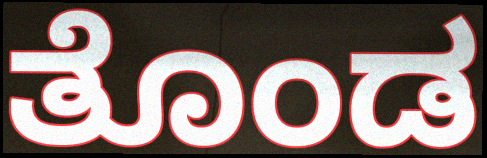
ತೊಂಡ